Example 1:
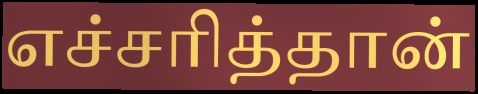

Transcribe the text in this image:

எச்சரித்தான்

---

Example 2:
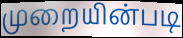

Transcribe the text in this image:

முறையின்படி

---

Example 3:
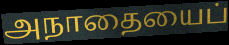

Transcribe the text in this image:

அநாதையைப்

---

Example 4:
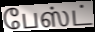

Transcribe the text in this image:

பேஸ்ட்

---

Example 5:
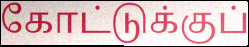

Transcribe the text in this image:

கோட்டுக்குப்